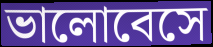
ভালোবেসে